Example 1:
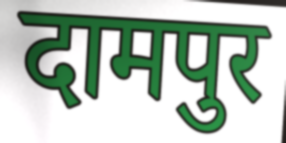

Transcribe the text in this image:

दामपुर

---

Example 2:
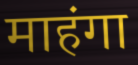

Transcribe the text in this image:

माहंगा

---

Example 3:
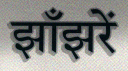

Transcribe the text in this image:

झाँझरें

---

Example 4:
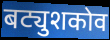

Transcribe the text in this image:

बट्युशकोव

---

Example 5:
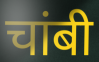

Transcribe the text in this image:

चांबी